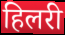
हिलरी